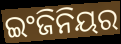
ଇଂଜିନିୟର